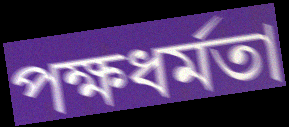
পক্ষধর্মতা